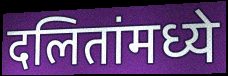
दलितांमध्ये